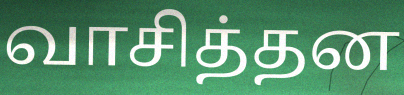
வாசித்தன